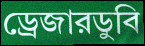
ড্রেজারডুবি